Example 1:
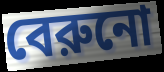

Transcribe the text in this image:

বেরুনো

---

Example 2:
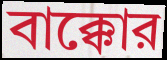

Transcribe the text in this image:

বাক্কোর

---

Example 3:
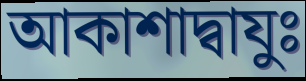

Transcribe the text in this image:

আকাশাদ্বাযুঃ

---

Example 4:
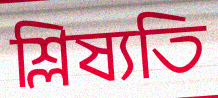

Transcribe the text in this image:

শ্লিষ্যতি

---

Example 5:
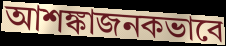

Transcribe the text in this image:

আশঙ্কাজনকভাবে